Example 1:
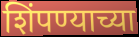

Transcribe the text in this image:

शिंपण्याच्या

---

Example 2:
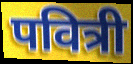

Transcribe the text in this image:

पवित्री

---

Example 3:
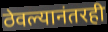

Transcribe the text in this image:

ठेवल्यानंतरही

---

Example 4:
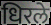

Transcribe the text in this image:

धिरले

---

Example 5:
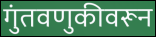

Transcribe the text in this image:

गुंतवणुकीवरून